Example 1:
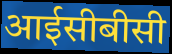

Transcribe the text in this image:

आईसीबीसी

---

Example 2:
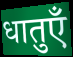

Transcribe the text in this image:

धातुएँ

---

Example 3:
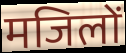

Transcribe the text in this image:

मजिलों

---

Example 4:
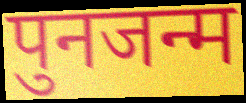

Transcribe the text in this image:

पुनजन्म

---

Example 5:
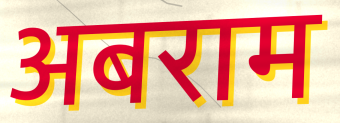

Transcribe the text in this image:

अबराम